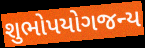
શુભોપયોગજન્ય